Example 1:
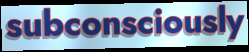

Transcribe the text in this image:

subconsciously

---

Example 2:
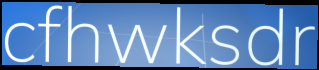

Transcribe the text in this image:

cfhwksdr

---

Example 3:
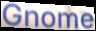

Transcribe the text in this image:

Gnome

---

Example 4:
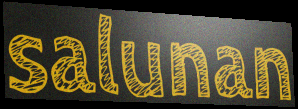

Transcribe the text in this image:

salunan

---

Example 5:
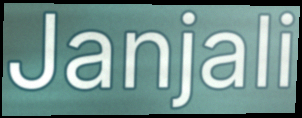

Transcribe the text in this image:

Janjali